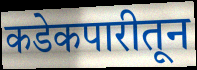
कडेकपारीतून